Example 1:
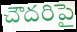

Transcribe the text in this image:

చౌదరిపై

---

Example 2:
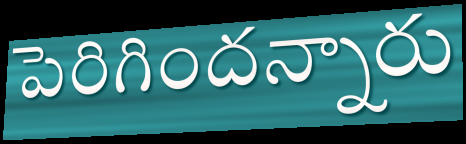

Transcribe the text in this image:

పెరిగిందన్నారు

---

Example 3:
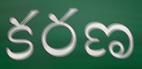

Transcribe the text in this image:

కరణ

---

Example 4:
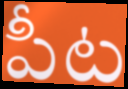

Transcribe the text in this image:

పీట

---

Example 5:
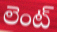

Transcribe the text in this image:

లెంట్